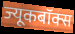
ज्यूकबॉक्स